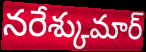
నరేశ్కుమార్